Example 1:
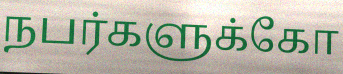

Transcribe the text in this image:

நபர்களுக்கோ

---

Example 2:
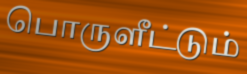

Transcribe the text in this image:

பொருளீட்டும்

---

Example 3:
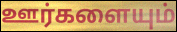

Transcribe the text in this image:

ஊர்களையும்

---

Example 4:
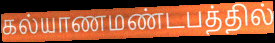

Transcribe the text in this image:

கல்யாணமண்டபத்தில்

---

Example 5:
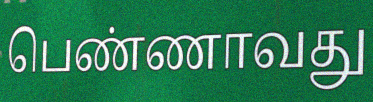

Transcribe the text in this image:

பெண்ணாவது